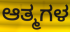
ಆತ್ಮಗಳ